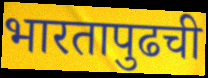
भारतापुढची